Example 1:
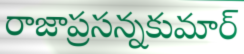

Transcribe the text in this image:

రాజాప్రసన్నకుమార్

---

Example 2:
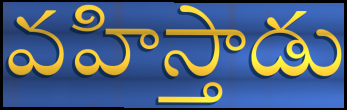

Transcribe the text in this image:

వహిస్తాడు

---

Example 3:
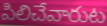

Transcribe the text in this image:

పిలిచేవారుట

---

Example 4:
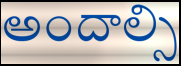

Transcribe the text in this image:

అందాల్సి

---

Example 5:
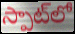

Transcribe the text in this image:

స్పాట్‌లో